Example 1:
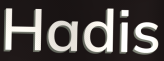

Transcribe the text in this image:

Hadis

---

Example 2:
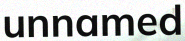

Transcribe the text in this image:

unnamed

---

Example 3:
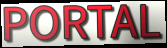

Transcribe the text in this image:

PORTAL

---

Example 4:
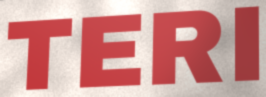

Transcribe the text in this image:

TERI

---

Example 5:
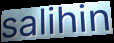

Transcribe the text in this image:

salihin